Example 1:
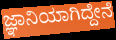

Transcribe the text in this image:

ಜ್ಞಾನಿಯಾಗಿದ್ದೇನೆ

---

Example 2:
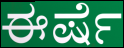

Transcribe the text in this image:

ಈರ್ಷೆ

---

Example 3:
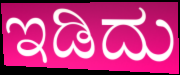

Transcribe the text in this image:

ಇಡಿದು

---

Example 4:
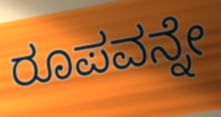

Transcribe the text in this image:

ರೂಪವನ್ನೇ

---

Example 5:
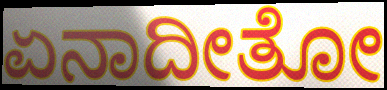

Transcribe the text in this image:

ಏನಾದೀತೋ